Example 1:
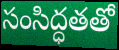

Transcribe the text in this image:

సంసిద్ధతతో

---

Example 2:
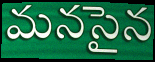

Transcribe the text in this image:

మనసైన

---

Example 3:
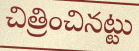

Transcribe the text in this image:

చిత్రించినట్టు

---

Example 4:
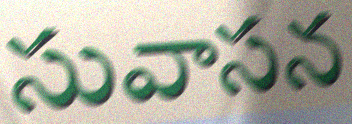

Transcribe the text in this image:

సువాసన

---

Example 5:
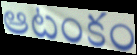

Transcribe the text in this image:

ఆటంకం